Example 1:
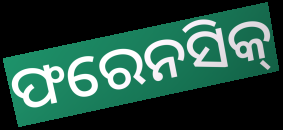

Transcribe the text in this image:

ଫରେନସିକ୍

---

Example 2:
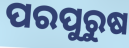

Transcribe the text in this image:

ପରପୁରୁଷ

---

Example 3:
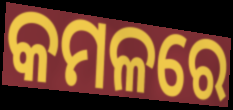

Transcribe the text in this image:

କମଳରେ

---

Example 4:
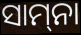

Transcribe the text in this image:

ସାମ୍‌ନା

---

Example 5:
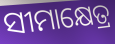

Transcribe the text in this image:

ସୀମାକ୍ଷେତ୍ର